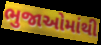
ભુજાઓમાંથી